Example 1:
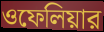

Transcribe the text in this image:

ওফেলিয়ার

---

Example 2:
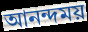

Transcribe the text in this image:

আনন্দময়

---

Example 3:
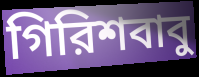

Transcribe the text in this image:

গিরিশবাবু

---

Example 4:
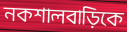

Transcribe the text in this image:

নকশালবাড়িকে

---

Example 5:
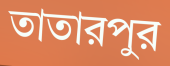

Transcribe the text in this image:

তাতারপুর